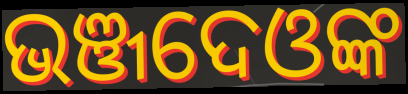
ଭଞ୍ଜଦେଓଙ୍କ